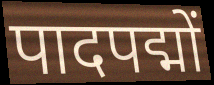
पादपद्मों